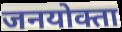
जनयोक्ता